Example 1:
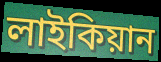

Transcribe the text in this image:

লাইকিয়ান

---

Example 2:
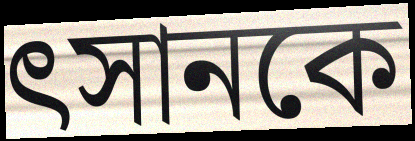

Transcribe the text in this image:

ৎসানকে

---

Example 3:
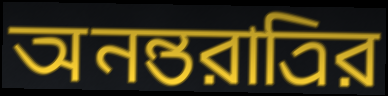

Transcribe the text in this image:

অনন্তরাত্রির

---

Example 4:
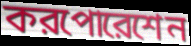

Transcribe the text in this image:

করপোরেশেন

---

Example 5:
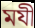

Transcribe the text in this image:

মযী